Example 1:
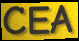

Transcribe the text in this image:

CEA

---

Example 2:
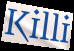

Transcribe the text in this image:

Killi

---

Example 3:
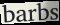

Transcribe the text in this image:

barbs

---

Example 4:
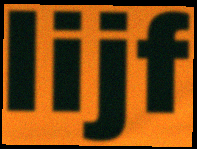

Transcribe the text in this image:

lijf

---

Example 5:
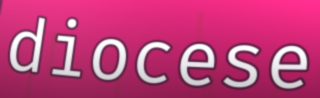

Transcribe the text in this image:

diocese